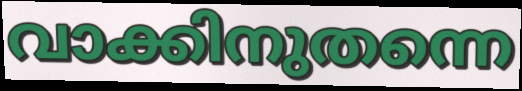
വാക്കിനുതന്നെ